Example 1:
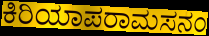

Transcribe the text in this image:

ಕಿರಿಯಾಪರಾಮಸನಂ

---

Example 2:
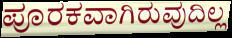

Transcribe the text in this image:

ಪೂರಕವಾಗಿರುವುದಿಲ್ಲ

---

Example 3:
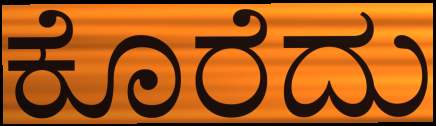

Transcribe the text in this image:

ಕೊರೆದು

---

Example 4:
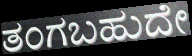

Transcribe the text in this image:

ತಂಗಬಹುದೇ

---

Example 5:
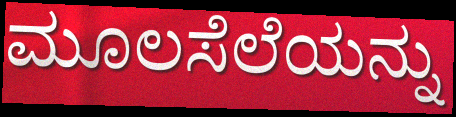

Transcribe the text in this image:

ಮೂಲಸೆಲೆಯನ್ನು